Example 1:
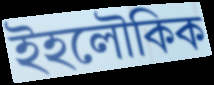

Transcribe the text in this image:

ইহলৌকিক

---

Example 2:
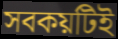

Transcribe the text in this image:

সবকয়টিই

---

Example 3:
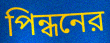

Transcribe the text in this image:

পিন্ধনের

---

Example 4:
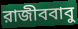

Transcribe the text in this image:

রাজীববাবু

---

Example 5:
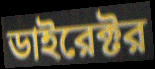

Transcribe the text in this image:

ডাইরেক্টর